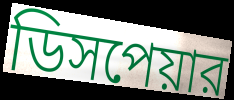
ডিসপেয়ার